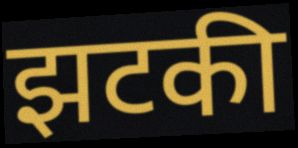
झटकी